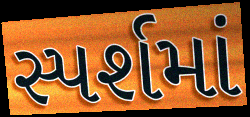
સ્પર્શમાં